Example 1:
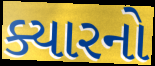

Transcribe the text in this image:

ક્યારનો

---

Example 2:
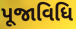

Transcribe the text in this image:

પૂજાવિધિ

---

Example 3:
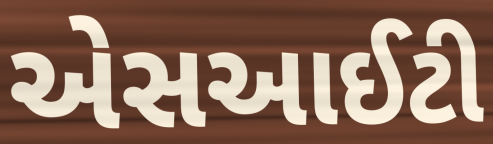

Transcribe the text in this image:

એસઆઈટી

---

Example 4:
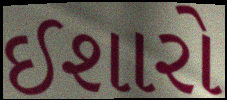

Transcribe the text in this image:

ઈશારો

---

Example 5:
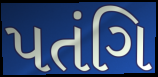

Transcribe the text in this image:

પતંગિ